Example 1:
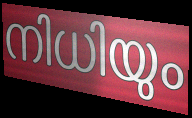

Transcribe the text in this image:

നിധിയും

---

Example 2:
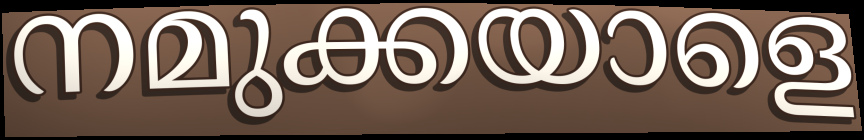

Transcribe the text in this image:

നമുക്കയാളെ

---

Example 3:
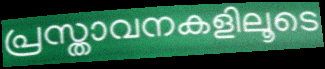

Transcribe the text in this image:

പ്രസ്താവനകളിലൂടെ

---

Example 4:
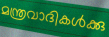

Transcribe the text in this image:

മന്ത്രവാദികൾക്കു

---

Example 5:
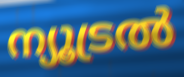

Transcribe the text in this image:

ന്യൂട്രൽ